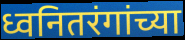
ध्वनितरंगांच्या